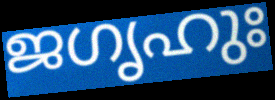
ജഗൃഹുഃ